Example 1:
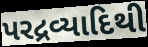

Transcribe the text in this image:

પરદ્રવ્યાદિથી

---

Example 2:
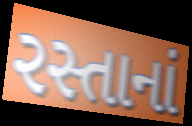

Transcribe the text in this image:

રસ્તાનાં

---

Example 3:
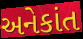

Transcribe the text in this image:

અનેકાંત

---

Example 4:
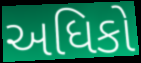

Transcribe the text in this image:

અધિકો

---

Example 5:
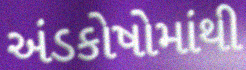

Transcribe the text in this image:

અંડકોષોમાંથી